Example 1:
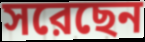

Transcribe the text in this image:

সরেছেন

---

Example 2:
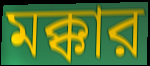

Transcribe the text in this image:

মক্কার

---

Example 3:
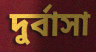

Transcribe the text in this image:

দুর্বাসা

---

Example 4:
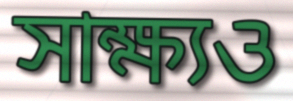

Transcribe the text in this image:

সাক্ষ্যও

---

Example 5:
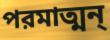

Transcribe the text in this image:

পরমাত্মন্